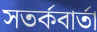
সতর্কবার্তা